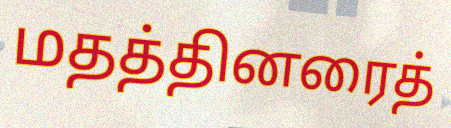
மதத்தினரைத்